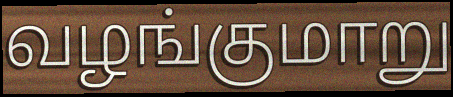
வழங்குமாறு